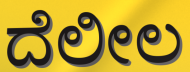
ದೆಲೀಲ